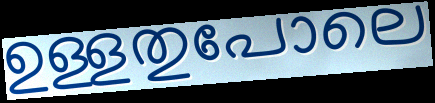
ഉള്ളതുപോലെ